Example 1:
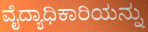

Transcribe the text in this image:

ವೈದ್ಯಾಧಿಕಾರಿಯನ್ನು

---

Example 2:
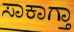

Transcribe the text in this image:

ಸಾಕಾಗ್ತಾ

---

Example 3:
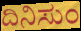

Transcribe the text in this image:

ದಿನಿಸುಂ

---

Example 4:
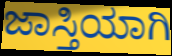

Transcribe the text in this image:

ಜಾಸ್ತಿಯಾಗಿ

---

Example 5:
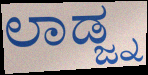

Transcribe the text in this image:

ಲಾಡ್ಜ್ನ